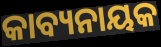
କାବ୍ୟନାୟକ